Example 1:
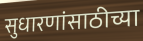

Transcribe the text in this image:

सुधारणांसाठीच्या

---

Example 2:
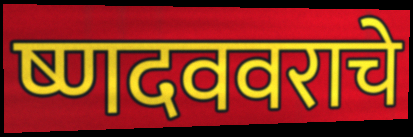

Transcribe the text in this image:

ष्णदववराचे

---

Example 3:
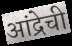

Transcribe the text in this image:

आंद्रेची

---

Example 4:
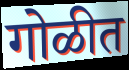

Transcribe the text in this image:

गोळीत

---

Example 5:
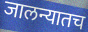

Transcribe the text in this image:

जालन्यातच